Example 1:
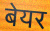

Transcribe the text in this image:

बेयर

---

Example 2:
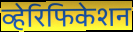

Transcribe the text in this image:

व्हेरिफिकेशन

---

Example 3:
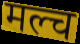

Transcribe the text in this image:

मल्च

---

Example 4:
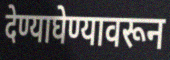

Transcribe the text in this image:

देण्याघेण्यावरून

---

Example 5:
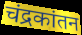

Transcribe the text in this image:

चंद्रकांतन